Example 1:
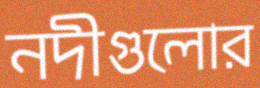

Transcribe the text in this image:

নদীগুলোর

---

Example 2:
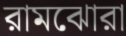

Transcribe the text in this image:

রামঝোরা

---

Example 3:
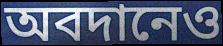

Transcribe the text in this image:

অবদানেও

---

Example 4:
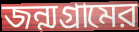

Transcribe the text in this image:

জন্মগ্রামের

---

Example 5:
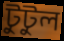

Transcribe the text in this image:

টুটুল